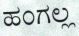
ಹಂಗಲ್ಲ